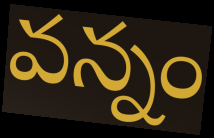
వన్నం